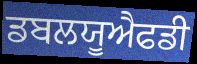
ਡਬਲਯੂਐਫਡੀ